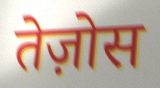
तेज़ोस